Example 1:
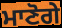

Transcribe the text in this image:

ਮਾਣੋਗੇ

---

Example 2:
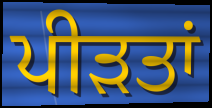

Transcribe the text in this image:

ਪੀਡ਼ਤਾਂ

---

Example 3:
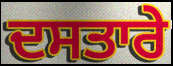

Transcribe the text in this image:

ਦਸਤਾਰੇ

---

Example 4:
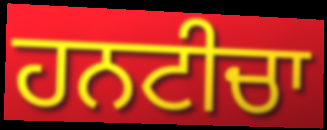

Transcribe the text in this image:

ਹਨਟੀਚਾ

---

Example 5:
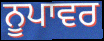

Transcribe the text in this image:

ਨੂਪਾਵਰ